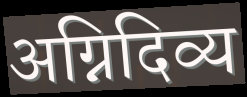
अग्निदिव्य